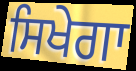
ਸਿਖੇਗਾ